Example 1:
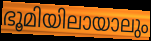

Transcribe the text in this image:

ഭൂമിയിലായാലും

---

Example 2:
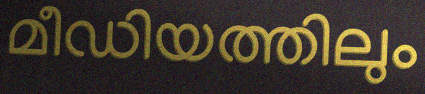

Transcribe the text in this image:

മീഡിയത്തിലും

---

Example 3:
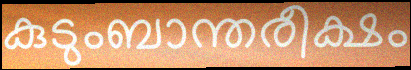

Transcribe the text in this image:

കുടുംബാന്തരീക്ഷം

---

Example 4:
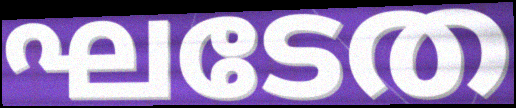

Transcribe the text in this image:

ഘടേത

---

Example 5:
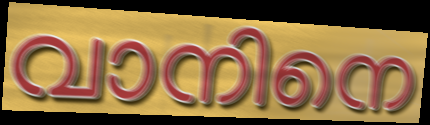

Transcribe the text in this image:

വാനിനെ